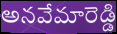
అనవేమారెడ్డి